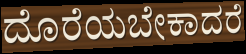
ದೊರೆಯಬೇಕಾದರೆ